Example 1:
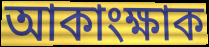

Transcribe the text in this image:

আকাংক্ষাক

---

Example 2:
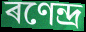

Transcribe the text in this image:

ৰণেন্দ্ৰ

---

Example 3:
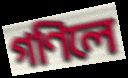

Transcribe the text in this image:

গণিলে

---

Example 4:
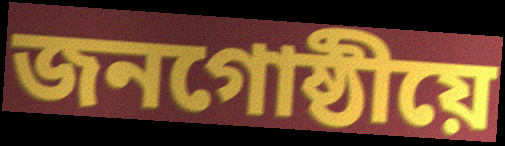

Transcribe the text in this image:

জনগোষ্ঠীয়ে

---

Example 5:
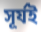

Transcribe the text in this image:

সূৰ্যই